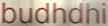
budhdhi